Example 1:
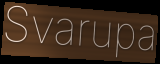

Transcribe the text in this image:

Svarupa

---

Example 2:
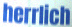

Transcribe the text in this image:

herrlich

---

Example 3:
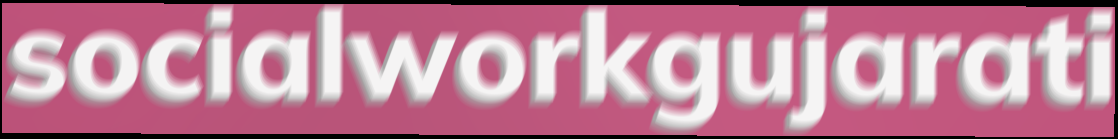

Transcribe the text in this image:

socialworkgujarati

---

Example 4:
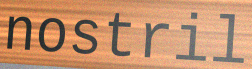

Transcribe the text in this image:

nostril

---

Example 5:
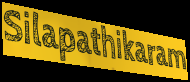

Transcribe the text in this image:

Silapathikaram